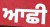
ਆਛੀ